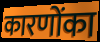
कारणोंका